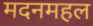
मदनमहल